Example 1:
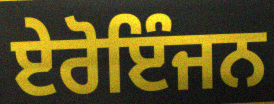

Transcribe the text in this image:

ਏਰੋਇੰਜਨ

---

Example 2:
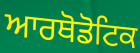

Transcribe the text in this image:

ਆਰਥੋਡੋਟਿਕ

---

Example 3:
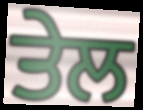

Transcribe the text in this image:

ਤੇਲ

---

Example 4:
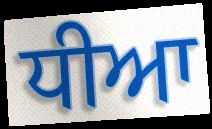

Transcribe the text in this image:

ਧੀਆ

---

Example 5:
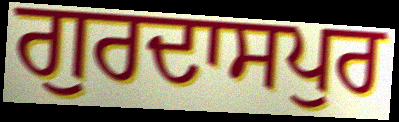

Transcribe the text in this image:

ਗੁਰਦਾਸਪੁਰ